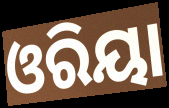
ଓରିୟା